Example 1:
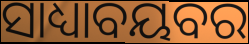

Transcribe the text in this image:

ସାଧ୍ୟାବୟବର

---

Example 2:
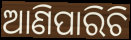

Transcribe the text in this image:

ଆଣିପାରିଚି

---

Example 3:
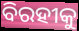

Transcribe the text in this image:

ବିରହୀକୁ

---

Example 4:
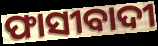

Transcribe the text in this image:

ଫାସୀବାଦୀ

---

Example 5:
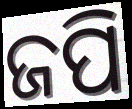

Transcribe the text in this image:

ଜପି